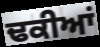
ਢਕੀਆਂ